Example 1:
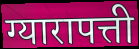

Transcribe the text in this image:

ग्यारापत्ती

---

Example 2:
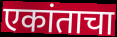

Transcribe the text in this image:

एकांताचा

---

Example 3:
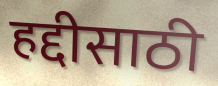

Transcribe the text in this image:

हद्दीसाठी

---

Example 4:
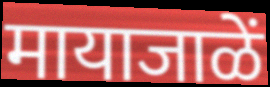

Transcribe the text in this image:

मायाजाळें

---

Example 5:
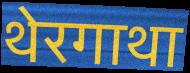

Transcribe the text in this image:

थेरगाथा